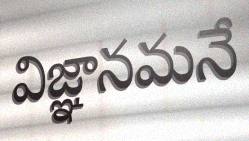
విజ్ఞానమనే